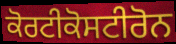
ਕੋਰਟੀਕੋਸਟੀਰੋਨ